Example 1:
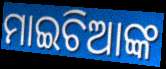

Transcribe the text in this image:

ମାଇଚିଆଙ୍କ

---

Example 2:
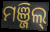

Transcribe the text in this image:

ମଞ୍ଜିଲ୍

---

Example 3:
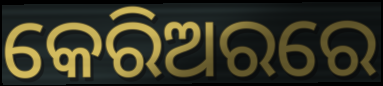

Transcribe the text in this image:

କେରିଅରରେ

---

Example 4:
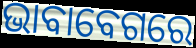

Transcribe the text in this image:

ଭାବାବେଗରେ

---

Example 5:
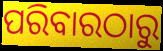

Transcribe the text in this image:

ପରିବାରଠାରୁ